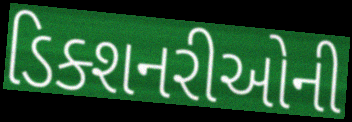
ડિક્શનરીઓની